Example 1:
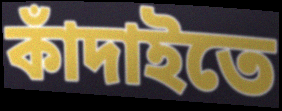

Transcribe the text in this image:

কাঁদাইতে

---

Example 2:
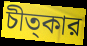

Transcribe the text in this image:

চীত্কার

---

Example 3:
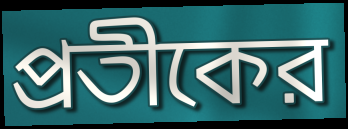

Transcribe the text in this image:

প্রতীকের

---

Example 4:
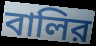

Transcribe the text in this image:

বালির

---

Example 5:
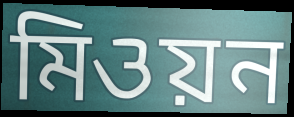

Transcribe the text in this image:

মিওয়ন